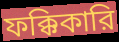
ফক্কিকারি